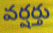
వర్షర్తు